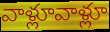
వాళ్లూవాళ్లూ